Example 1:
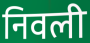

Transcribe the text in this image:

निवली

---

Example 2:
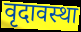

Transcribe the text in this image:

वृदावस्था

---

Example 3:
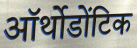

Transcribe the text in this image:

ऑर्थोडोंटिक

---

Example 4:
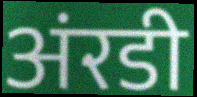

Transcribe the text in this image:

अंरडी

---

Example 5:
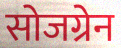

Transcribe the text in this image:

सोजग्रेन